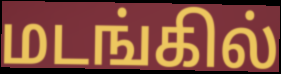
மடங்கில்